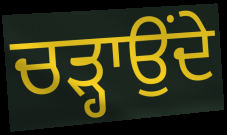
ਚੜ੍ਹਾਉਂਦੇ